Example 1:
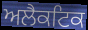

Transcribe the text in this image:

ਅਲੈਕਟਿਕ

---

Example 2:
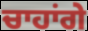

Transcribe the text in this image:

ਚਾਹਾਂਗੇ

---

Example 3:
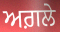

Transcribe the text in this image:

ਅਗ਼ਲੇ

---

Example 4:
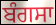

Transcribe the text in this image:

ਬੰਗਸਾ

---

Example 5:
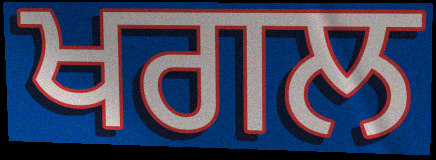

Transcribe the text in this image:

ਖਗਲ